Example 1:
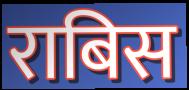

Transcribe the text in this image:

राबिस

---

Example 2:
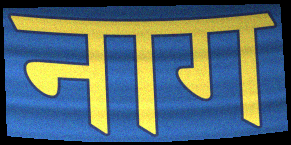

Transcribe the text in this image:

नाग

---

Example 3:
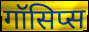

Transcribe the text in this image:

गॉसिप्स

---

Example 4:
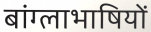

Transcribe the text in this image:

बांग्लाभाषियों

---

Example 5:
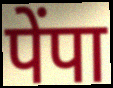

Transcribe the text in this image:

पेंपा